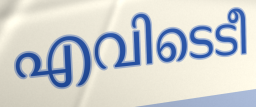
എവിടെടീ